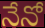
నేనో